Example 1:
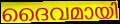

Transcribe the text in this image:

ദൈവമായി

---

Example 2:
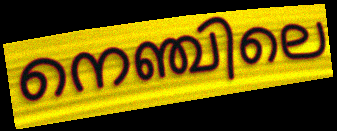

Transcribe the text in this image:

നെഞ്ചിലെ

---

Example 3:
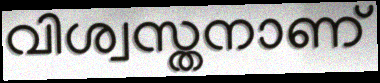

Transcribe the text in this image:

വിശ്വസ്തനാണ്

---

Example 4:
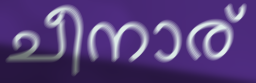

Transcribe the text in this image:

ചീനാര്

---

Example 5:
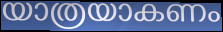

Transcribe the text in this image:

യാത്രയാകണം